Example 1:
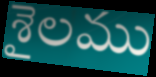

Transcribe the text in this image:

శైలము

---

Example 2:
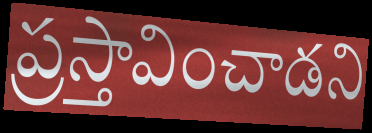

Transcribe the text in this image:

ప్రస్తావించాడని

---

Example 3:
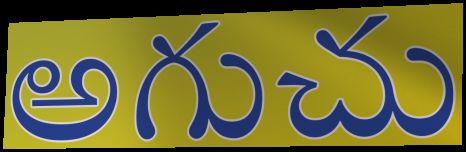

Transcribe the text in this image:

అగుచు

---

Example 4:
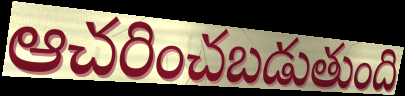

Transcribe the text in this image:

ఆచరించబడుతుంది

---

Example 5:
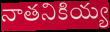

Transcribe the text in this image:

నాతనికియ్య